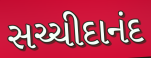
સચ્ચીદાનંદ